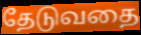
தேடுவதை